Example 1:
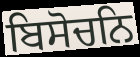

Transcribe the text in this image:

ਬਿਸੋਚਨਿ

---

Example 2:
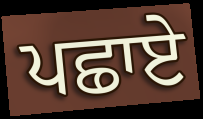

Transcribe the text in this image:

ਪਛਾਏ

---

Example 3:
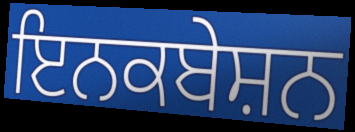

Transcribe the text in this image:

ਇਨਕਬੇਸ਼ਨ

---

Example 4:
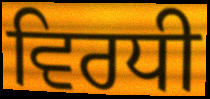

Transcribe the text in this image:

ਵਿਰਧੀ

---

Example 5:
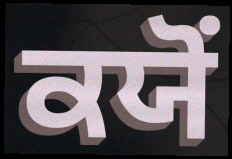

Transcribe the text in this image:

ਕਯੋਂ